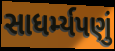
સાધર્મ્યપણું